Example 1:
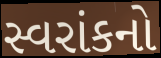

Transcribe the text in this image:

સ્વરાંકનો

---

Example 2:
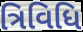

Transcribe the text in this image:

ત્રિવિધિ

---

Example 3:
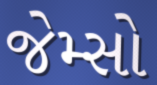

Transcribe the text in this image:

જેમ્સો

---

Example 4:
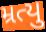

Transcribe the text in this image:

મ્રત્યુ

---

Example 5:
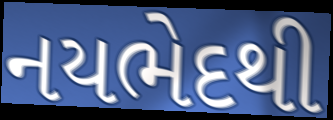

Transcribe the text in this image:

નયભેદથી